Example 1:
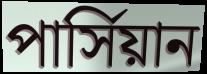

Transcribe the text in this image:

পার্সিয়ান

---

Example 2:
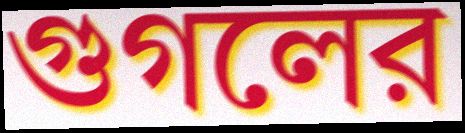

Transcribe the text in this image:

গুগলের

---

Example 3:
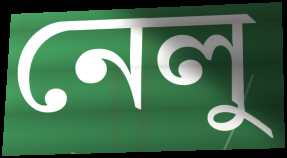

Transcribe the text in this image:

নেলু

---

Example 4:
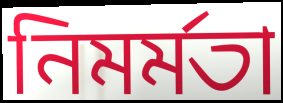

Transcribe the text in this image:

নিমর্মতা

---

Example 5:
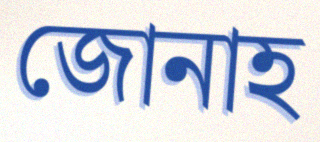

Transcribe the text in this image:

জোনাহ